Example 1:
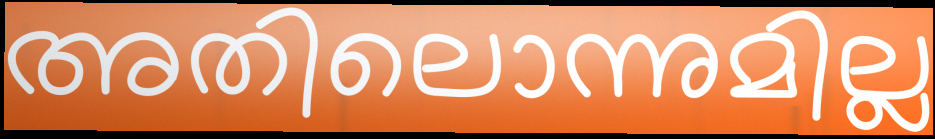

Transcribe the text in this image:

അതിലൊന്നുമില്ല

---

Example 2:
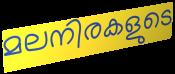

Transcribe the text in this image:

മലനിരകളുടെ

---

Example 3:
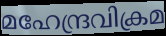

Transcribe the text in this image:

മഹേന്ദ്രവിക്രമ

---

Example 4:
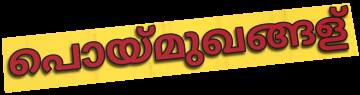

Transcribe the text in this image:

പൊയ്മുഖങ്ങള്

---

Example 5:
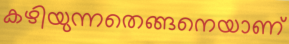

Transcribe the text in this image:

കഴിയുന്നതെങ്ങനെയാണ്